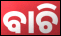
ବାଚି